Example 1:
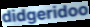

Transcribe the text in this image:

didgeridoo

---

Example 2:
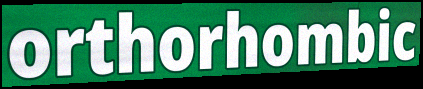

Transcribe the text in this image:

orthorhombic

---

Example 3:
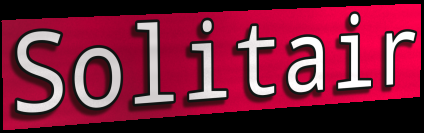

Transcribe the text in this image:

Solitair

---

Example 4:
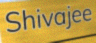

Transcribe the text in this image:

Shivajee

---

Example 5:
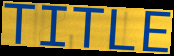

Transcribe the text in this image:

TITLE